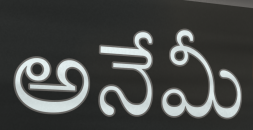
అనేమీ